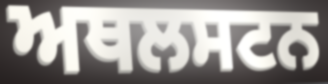
ਅਥਲਸਟਨ